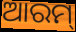
ଆରମ୍